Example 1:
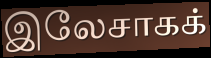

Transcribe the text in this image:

இலேசாகக்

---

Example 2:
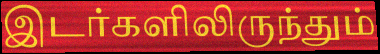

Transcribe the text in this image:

இடர்களிலிருந்தும்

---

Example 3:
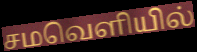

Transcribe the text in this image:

சமவெளியில்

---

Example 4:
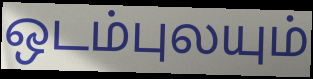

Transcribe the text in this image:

ஒடம்புலயும்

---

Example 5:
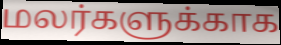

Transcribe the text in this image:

மலர்களுக்காக